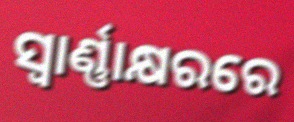
ସ୍ୱାର୍ଣ୍ଣାକ୍ଷରରେ